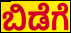
ಬಿಡೆಗೆ